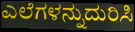
ಎಲೆಗಳನ್ನುದುರಿಸಿ